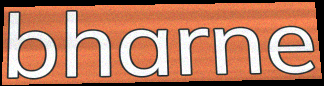
bharne